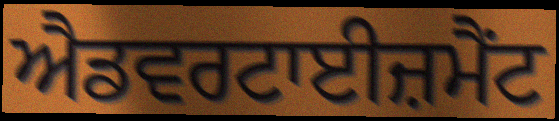
ਐਡਵਰਟਾਈਜ਼ਮੈਂਟ